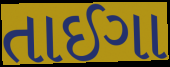
તાઈગા